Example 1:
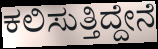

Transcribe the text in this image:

ಕಲಿಸುತ್ತಿದ್ದೇನೆ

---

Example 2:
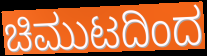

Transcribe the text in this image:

ಚಿಮುಟದಿಂದ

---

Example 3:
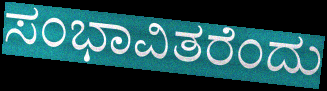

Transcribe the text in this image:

ಸಂಭಾವಿತರೆಂದು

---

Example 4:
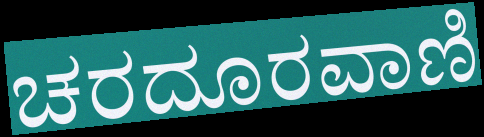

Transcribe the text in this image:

ಚರದೂರವಾಣಿ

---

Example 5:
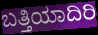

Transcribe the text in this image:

ಬತ್ತಿಯಾದಿರಿ